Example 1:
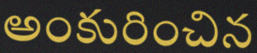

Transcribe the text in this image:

అంకురించిన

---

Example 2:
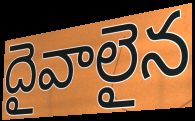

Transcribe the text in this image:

దైవాలైన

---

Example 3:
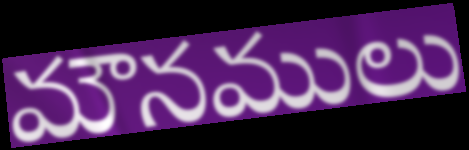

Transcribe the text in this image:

మౌనములు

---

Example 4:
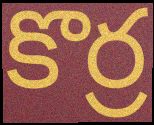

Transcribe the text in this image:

కొర్ర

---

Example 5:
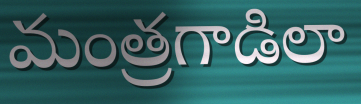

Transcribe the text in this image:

మంత్రగాడిలా